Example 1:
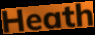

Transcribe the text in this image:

Heath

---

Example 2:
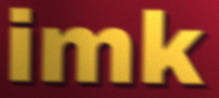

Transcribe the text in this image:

imk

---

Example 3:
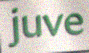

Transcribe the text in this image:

juve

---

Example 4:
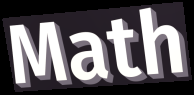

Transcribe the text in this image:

Math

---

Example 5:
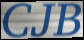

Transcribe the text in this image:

CJB